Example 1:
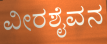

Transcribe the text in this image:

ವೀರಶೈವನ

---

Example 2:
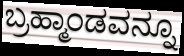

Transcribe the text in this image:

ಬ್ರಹ್ಮಾಂಡವನ್ನೂ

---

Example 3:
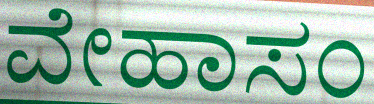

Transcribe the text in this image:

ವೇಹಾಸಂ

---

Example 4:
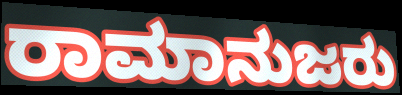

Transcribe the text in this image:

ರಾಮಾನುಜರು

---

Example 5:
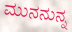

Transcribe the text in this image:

ಮುನನುನ್ನ